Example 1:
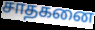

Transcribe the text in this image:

சாதகனை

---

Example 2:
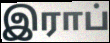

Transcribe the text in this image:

இராப்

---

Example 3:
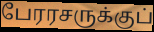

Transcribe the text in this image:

பேரரசருக்குப்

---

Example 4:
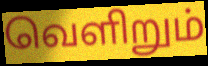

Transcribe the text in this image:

வெளிறும்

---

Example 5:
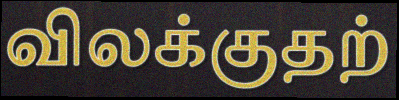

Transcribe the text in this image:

விலக்குதற்